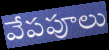
వేపపూలు